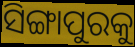
ସିଙ୍ଗାପୁରକୁ